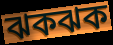
ঝকঝক